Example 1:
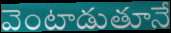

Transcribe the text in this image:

వెంటాడుతూనే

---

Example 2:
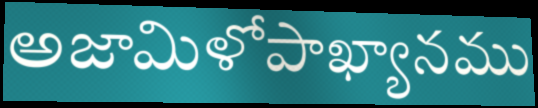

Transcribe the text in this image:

అజామిళోపాఖ్యానము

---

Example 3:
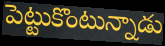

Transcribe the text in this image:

పెట్టుకొంటున్నాడు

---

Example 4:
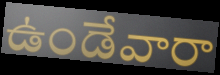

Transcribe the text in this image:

ఉండేవారా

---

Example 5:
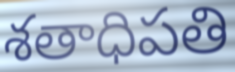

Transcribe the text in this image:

శతాధిపతి